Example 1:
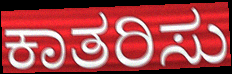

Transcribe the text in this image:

ಕಾತರಿಸು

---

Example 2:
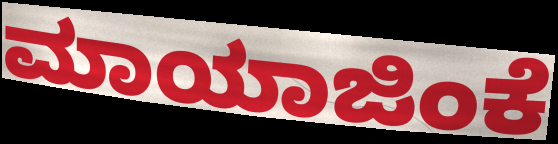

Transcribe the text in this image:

ಮಾಯಾಜಿಂಕೆ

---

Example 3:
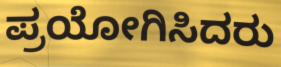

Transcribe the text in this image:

ಪ್ರಯೋಗಿಸಿದರು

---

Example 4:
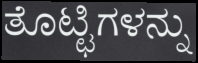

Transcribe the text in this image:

ತೊಟ್ಟಿಗಳನ್ನು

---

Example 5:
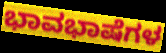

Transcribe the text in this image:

ಭಾವಭಾಷೆಗಳ